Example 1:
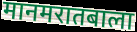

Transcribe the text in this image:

मानमरातबाला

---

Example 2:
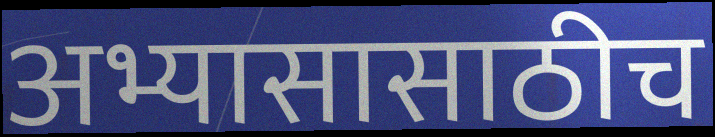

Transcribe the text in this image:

अभ्यासासाठीच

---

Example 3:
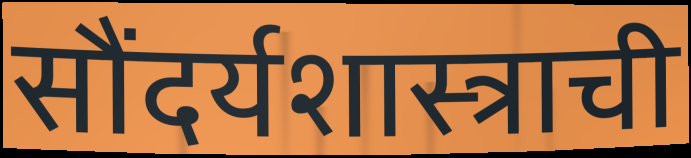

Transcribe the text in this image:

सौंदर्यशास्त्राची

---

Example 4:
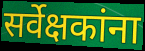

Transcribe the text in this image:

सर्वेक्षकांना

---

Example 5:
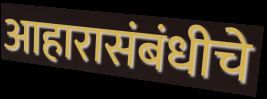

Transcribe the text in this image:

आहारासंबंधीचे